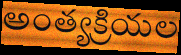
అంత్యక్రియల